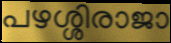
പഴശ്ശിരാജാ